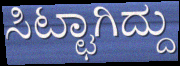
ಸಿಟ್ಟಾಗಿದ್ದು